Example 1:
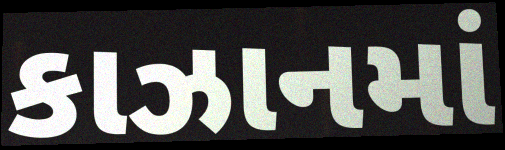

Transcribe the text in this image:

કાઝાનમાં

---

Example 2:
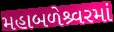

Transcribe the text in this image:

મહાબળેશ્ર્વરમાં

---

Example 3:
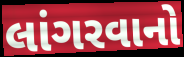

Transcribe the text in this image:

લાંગરવાનો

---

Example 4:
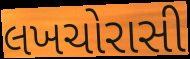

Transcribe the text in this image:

લખચોરાસી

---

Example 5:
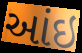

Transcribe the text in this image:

આંઇ